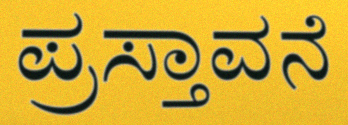
ಪ್ರಸ್ತಾವನೆ